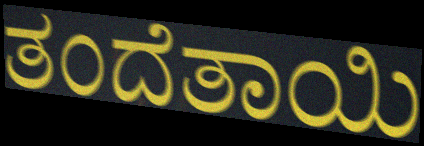
ತಂದೆತಾಯಿ